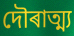
দৌৰাত্ম্য